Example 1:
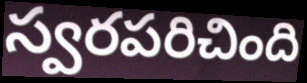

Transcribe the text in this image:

స్వరపరిచింది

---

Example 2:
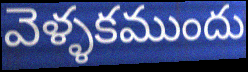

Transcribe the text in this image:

వెళ్ళకముందు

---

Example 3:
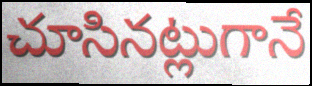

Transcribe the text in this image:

చూసినట్లుగానే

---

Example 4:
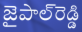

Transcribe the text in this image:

జైపాల్‌రెడ్డి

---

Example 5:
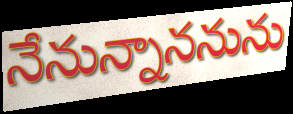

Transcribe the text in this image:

నేనున్నాననును